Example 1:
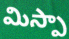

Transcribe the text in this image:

మిస్పా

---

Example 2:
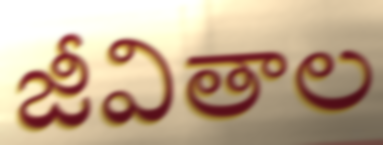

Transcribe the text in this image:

జీవితాల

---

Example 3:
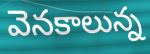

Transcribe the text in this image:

వెనకాలున్న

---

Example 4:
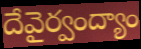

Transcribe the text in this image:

దేవైర్వంద్యాం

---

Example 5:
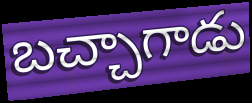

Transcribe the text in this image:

బచ్చాగాడు